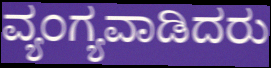
ವ್ಯಂಗ್ಯವಾಡಿದರು